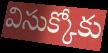
విసుక్కోకు